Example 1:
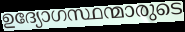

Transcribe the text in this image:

ഉദ്യോഗസ്ഥന്മാരുടെ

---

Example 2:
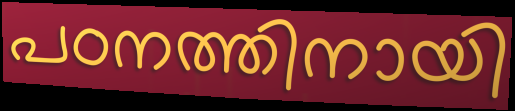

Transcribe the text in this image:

പഠനത്തിനായി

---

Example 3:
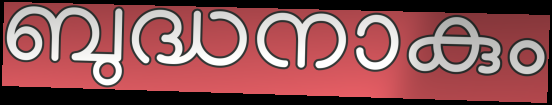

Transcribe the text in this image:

ബുദ്ധനാകും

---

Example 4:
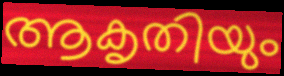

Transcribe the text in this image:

ആകൃതിയും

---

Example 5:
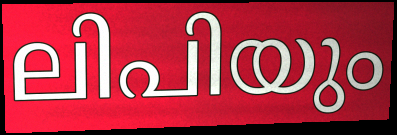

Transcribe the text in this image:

ലിപിയും